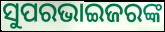
ସୁପରଭାଇଜରଙ୍କ